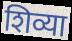
शिव्या